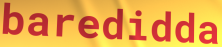
baredidda